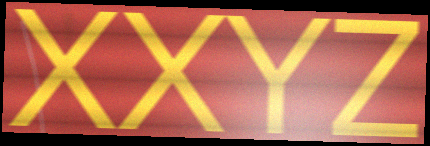
XXYZ